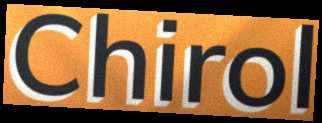
Chirol